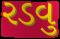
રડવુ